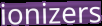
ionizers